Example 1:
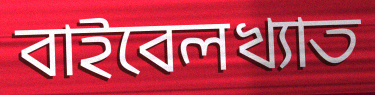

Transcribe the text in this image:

বাইবেলখ্যাত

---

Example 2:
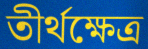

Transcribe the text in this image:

তীর্থক্ষেত্র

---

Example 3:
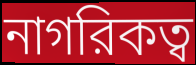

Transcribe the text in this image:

নাগরিকত্ব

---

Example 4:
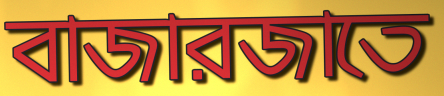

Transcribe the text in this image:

বাজারজাতে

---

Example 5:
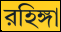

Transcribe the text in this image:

রহিঙ্গা